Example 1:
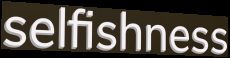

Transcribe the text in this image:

selfishness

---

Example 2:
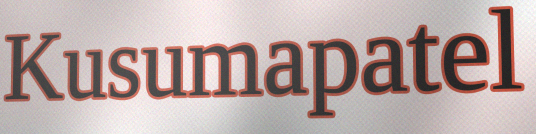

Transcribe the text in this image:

Kusumapatel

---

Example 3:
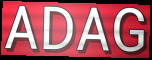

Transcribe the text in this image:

ADAG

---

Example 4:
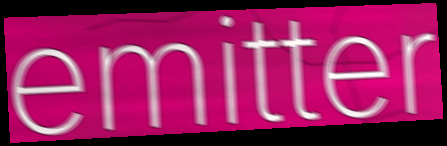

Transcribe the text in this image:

emitter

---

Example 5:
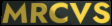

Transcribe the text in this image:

MRCVS